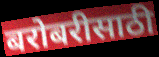
बरोबरीसाठी